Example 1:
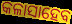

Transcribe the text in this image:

କଳାସାହେବ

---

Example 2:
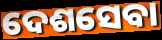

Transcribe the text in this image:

ଦେଶସେବା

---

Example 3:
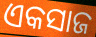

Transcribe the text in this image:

ଏକସାଜ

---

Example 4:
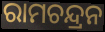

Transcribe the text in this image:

ରାମଚନ୍ଦ୍ରନ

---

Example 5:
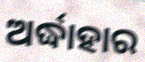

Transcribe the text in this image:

ଅର୍ଦ୍ଧାହାର